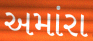
અમાંરા